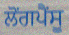
ਲੋਂਗਪੈਂਸੂ